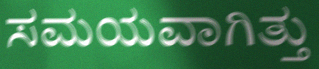
ಸಮಯವಾಗಿತ್ತು